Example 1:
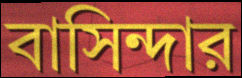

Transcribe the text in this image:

বাসিন্দার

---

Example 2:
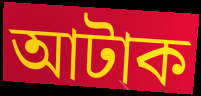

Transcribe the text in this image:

আটাক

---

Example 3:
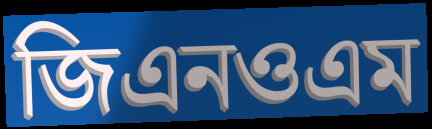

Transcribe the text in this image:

জিএনওএম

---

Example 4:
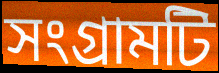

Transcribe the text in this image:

সংগ্রামটি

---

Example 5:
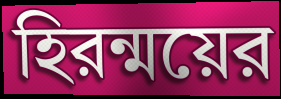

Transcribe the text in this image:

হিরন্ময়ের